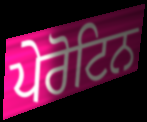
ਪੇਰੋਟਿਨ